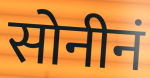
सोनीनं